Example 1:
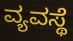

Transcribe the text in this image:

ವ್ಯವಸ್ಥೆ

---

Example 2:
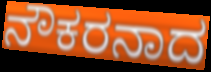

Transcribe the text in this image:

ನೌಕರನಾದ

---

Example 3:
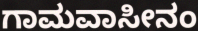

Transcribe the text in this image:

ಗಾಮವಾಸೀನಂ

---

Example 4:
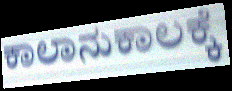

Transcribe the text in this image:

ಕಾಲಾನುಕಾಲಕ್ಕೆ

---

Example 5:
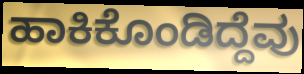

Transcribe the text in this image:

ಹಾಕಿಕೊಂಡಿದ್ದೆವು